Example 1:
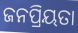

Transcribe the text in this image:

ଜନପ୍ରିୟତା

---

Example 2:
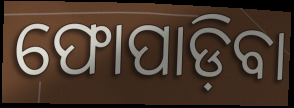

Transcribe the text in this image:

ଫୋପାଡ଼ିବା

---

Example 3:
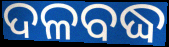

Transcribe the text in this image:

ଦଳବଦ୍ଧ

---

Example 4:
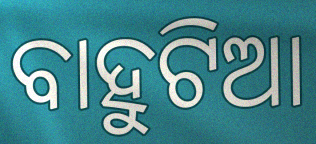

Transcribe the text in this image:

ବାହୁଟିଆ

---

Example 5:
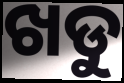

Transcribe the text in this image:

ଖଡୁ